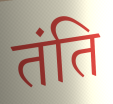
तंति